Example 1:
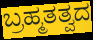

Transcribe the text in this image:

ಬ್ರಹ್ಮತತ್ವದ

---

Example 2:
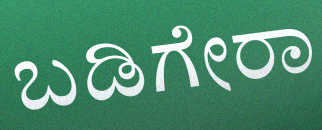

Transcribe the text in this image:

ಬಡಿಗೇರಾ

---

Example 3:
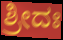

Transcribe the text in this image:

ಶ್ರೀದಃ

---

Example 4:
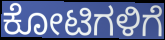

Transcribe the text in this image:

ಕೋಟಿಗಳಿಗೆ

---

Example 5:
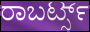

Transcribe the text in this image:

ರಾಬರ್ಟ್ಸ್